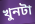
খুনটা